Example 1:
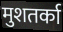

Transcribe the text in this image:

मुशतर्का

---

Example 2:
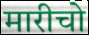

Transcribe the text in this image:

मारीचो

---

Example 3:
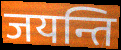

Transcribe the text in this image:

जयन्ति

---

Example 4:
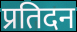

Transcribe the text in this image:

प्रतिदन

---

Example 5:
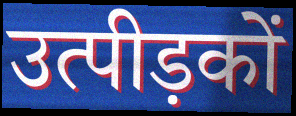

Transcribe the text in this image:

उत्पीड़कों